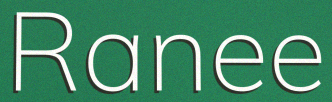
Ranee